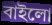
বাইলো